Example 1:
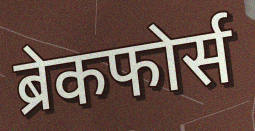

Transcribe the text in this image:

ब्रेकफोर्स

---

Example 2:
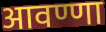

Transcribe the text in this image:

आवण्णा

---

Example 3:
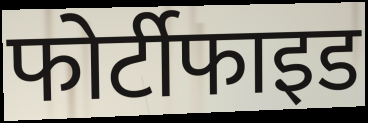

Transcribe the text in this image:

फोर्टीफाइड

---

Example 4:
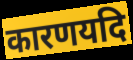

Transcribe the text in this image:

कारणयदि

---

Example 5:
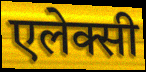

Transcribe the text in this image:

एलेक्सी